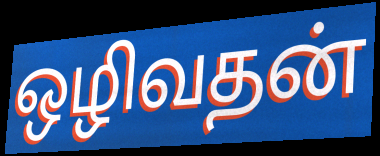
ஒழிவதன்